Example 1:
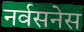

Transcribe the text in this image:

नर्वसनेस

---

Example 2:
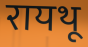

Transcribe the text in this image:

रायथू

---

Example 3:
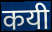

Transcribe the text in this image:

कयी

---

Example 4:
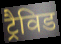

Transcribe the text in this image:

ट्रैविड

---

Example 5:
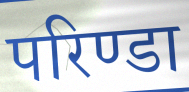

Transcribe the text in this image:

परिण्डा